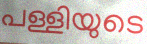
പള്ളിയുടെ